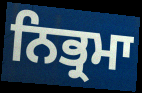
ਨਿਭ੍ਰਮਾ